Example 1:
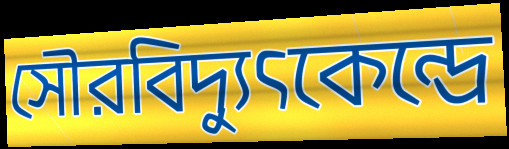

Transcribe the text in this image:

সৌরবিদ্যুৎকেন্দ্রে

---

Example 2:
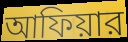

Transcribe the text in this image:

আফিয়ার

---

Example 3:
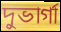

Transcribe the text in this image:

দুভার্গা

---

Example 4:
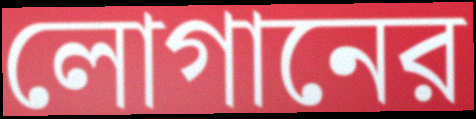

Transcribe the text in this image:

লোগানের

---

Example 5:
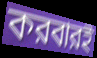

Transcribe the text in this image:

করবারই